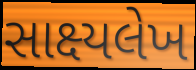
સાક્ષ્યલેખ